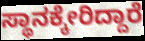
ಸ್ಥಾನಕ್ಕೇರಿದ್ದಾರೆ